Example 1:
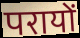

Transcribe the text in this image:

परायों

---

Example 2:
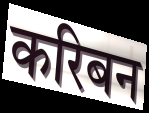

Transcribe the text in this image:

करिबन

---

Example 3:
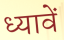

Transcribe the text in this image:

ध्यावें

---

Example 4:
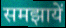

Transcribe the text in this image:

समझायें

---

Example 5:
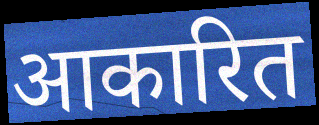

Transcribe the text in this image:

आकारित